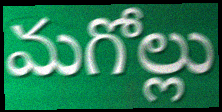
మగోల్లు